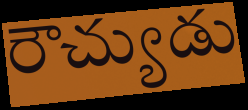
రౌచ్యుడు